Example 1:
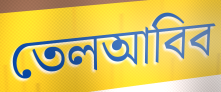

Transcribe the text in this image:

তেলআবিব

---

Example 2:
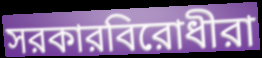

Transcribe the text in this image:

সরকারবিরোধীরা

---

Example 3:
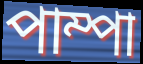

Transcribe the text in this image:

পাম্পা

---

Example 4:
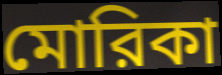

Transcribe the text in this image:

মোরিকা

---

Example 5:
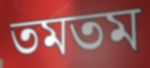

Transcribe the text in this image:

তমতম